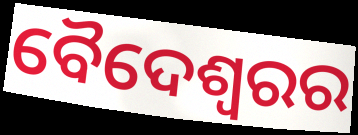
ବୈଦେଶ୍ୱରର